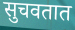
सुचवतात